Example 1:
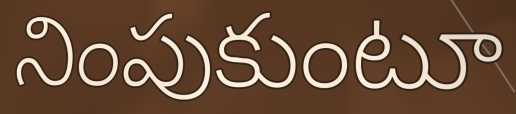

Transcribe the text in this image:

నింపుకుంటూ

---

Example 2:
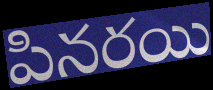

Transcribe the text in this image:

పినరయి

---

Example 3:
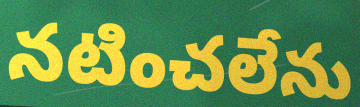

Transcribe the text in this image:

నటించలేను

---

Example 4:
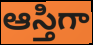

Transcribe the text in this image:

ఆస్తిగా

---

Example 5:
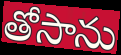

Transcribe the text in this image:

తోసాను